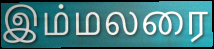
இம்மலரை